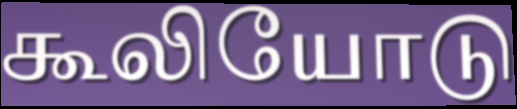
கூலியோடு